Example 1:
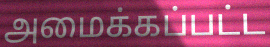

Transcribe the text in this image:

அமைக்கப்பட்ட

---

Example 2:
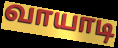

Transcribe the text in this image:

வாயாடி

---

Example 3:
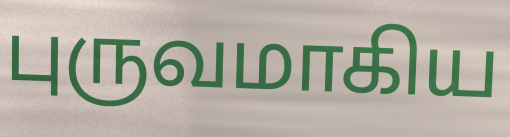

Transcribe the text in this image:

புருவமாகிய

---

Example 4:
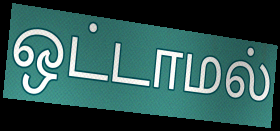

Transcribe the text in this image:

ஒட்டாமல்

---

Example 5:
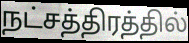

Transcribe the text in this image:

நட்சத்திரத்தில்